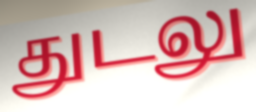
துடலு